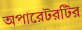
অপারেটরটির